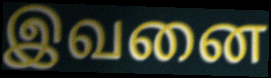
இவனை